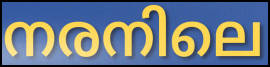
നരനിലെ